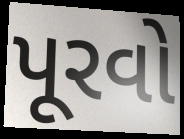
પૂરવો